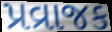
પ્રવ્રાજક